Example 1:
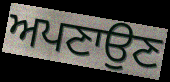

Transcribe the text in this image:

ਅਪਣਾਉਣ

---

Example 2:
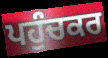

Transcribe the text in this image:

ਪਹੁੰਚਕਰ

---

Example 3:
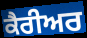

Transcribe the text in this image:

ਕੈਰੀਅਰ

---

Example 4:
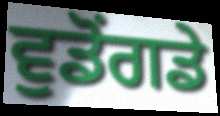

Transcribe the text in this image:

ਵੁਡੋਂਗਡੇ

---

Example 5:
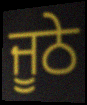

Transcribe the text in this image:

ਜੂਠੇ